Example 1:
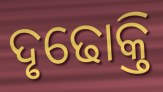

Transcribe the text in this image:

ଦୃଢୋକ୍ତି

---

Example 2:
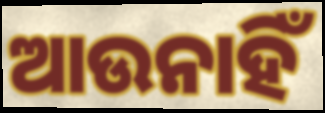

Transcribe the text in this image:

ଆଉନାହିଁ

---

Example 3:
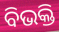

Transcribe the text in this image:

ବିଭକ୍ତି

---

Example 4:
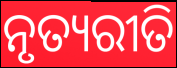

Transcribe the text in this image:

ନୃତ୍ୟରୀତି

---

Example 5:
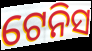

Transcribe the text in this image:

ଟେନିସ